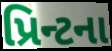
પ્રિન્ટના